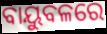
ବାୟୁବଳରେ